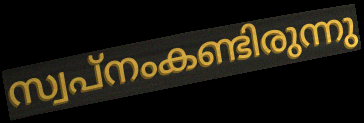
സ്വപ്നംകണ്ടിരുന്നു